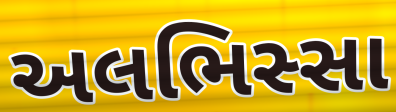
અલભિસ્સા